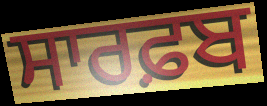
ਸਾਰਫ਼ਬ